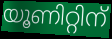
യൂണിറ്റിന്